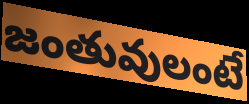
జంతువులంటే